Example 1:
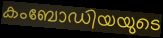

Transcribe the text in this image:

കംബോഡിയയുടെ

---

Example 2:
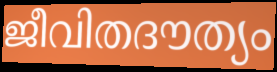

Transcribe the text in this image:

ജീവിതദൗത്യം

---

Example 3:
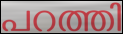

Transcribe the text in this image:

പറത്തി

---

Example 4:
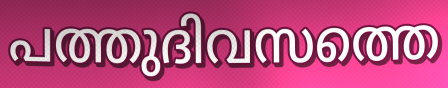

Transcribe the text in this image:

പത്തുദിവസത്തെ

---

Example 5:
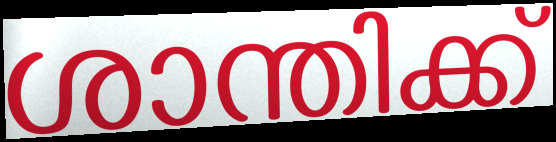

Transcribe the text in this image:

ശാന്തിക്ക്